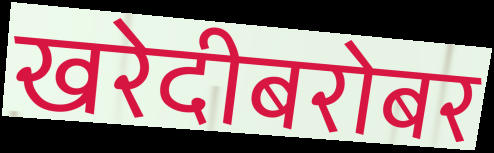
खरेदीबरोबर